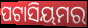
ପଟାସିୟମର